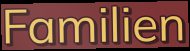
Familien